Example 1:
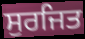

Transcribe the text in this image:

ਸੁਰਜਿਤ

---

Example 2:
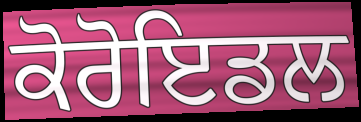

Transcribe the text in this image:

ਕੋਰੋਇਡਲ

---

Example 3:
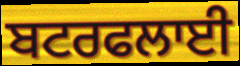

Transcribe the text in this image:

ਬਟਰਫਲਾਈ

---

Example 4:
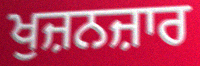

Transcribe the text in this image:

ਖੁਜ਼ਨਜ਼ਾਰ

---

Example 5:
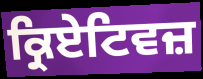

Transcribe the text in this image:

ਕ੍ਰਿਏਟਿਵਜ਼